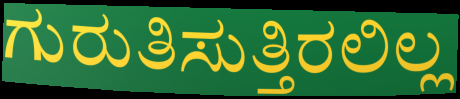
ಗುರುತಿಸುತ್ತಿರಲಿಲ್ಲ